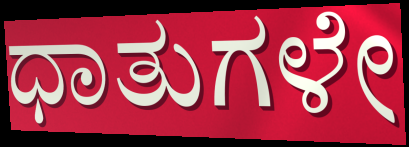
ಧಾತುಗಳೇ